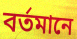
বৰ্তমানে